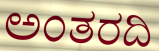
ಅಂತರದಿ